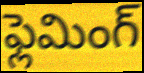
ఫ్లెమింగ్